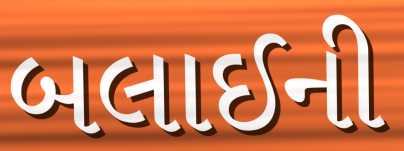
બલાઈની